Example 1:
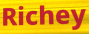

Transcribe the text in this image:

Richey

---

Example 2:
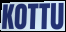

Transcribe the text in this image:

KOTTU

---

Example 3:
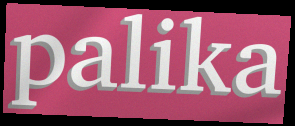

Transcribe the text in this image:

palika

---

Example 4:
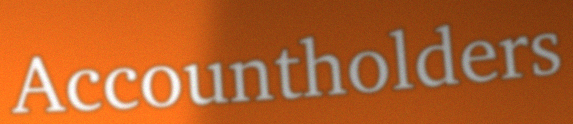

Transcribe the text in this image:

Accountholders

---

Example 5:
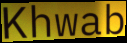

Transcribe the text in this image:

Khwab